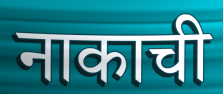
नाकाची